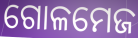
ଗୋଳମେଜ